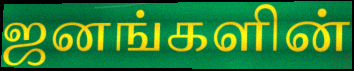
ஜனங்களின்